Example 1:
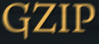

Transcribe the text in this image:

GZIP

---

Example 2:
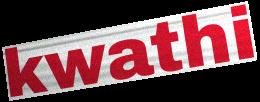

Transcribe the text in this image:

kwathi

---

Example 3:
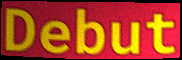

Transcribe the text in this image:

Debut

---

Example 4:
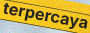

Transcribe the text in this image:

terpercaya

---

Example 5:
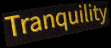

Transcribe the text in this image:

Tranquility